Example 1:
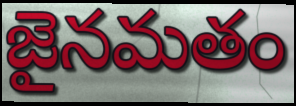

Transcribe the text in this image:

జైనమతం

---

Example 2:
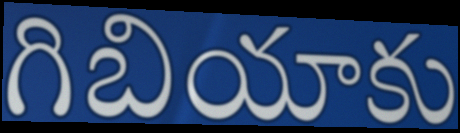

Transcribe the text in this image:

గిబియాకు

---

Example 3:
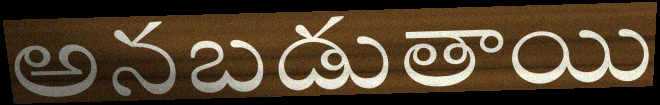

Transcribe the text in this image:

అనబడుతాయి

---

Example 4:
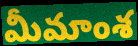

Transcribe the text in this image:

మీమాంశ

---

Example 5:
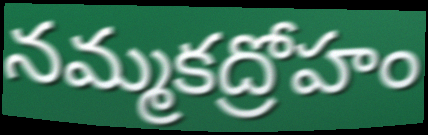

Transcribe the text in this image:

నమ్మకద్రోహం